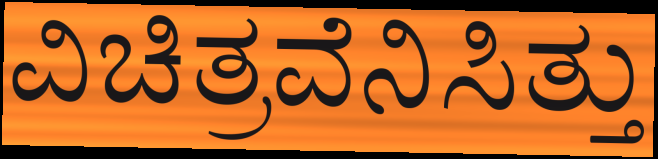
ವಿಚಿತ್ರವೆನಿಸಿತ್ತು